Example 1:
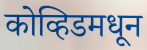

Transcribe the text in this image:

कोव्हिडमधून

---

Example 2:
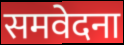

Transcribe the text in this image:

समवेदना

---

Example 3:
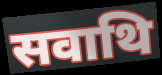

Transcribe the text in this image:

सवाथि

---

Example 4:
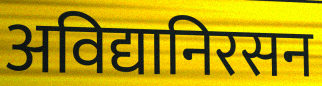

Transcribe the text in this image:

अविद्यानिरसन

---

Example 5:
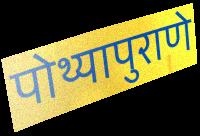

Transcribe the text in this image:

पोथ्यापुराणे